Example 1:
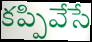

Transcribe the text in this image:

కప్పివేసే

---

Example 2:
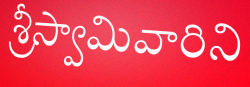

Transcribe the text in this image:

శ్రీస్వామివారిని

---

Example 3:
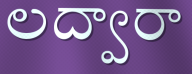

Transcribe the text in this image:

లద్వారా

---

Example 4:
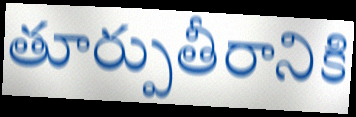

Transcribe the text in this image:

తూర్పుతీరానికి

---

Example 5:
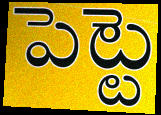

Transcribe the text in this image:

పెట్టె